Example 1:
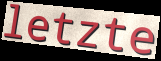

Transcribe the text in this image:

letzte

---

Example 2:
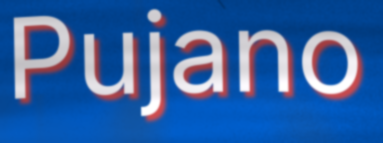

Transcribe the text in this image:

Pujano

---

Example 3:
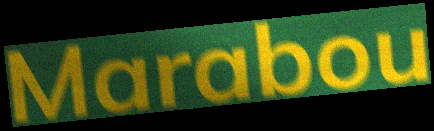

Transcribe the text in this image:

Marabou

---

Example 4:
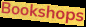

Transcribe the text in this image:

Bookshops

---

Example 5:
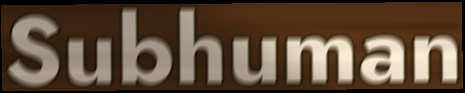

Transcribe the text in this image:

Subhuman